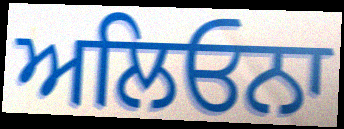
ਅਲਿਓਨਾ